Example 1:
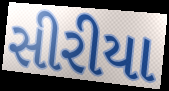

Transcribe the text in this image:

સીરીયા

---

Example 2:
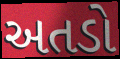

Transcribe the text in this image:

અતડો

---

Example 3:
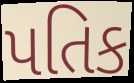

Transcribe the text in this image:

પતિક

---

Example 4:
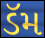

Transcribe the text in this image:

ડૅમ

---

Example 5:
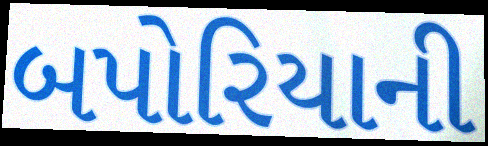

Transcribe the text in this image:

બપોરિયાની